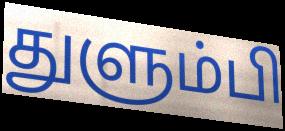
துளும்பி